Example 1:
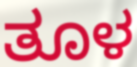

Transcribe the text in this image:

ತೂಳ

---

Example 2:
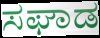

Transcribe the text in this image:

ಸಘಾಡ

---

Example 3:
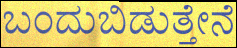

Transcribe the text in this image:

ಬಂದುಬಿಡುತ್ತೇನೆ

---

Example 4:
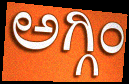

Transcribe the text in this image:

ಅಗ್ಗಿಂ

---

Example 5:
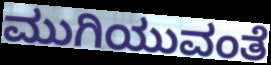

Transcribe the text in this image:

ಮುಗಿಯುವಂತೆ